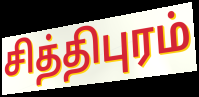
சித்திபுரம்